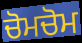
ਚੋਮਚੋਮ